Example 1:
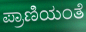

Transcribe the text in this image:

ಪ್ರಾಣಿಯಂತೆ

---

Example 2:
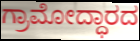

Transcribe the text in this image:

ಗ್ರಾಮೋದ್ಧಾರದ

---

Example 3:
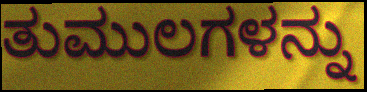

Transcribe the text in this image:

ತುಮುಲಗಳನ್ನು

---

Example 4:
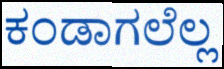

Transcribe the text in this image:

ಕಂಡಾಗಲೆಲ್ಲ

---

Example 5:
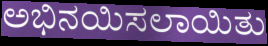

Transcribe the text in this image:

ಅಭಿನಯಿಸಲಾಯಿತು